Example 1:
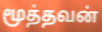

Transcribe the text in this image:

மூத்தவன்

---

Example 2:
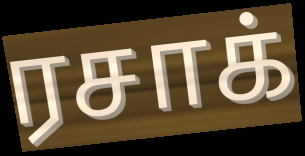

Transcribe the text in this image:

ரசாக்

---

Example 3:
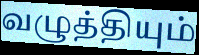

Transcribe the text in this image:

வழுத்தியும்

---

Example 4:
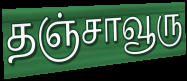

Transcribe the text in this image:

தஞ்சாவூரு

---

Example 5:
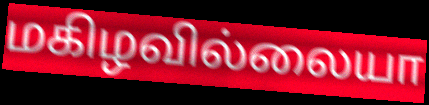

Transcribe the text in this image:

மகிழவில்லையா